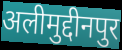
अलीमुद्दीनपुर